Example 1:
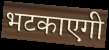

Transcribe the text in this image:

भटकाएगी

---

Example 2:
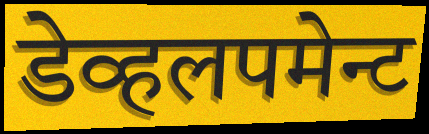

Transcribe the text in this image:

डेव्हलपमेन्ट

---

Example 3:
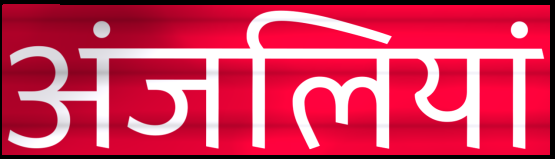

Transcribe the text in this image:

अंजलियां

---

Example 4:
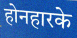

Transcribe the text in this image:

होनहारके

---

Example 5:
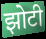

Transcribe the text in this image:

झोटी